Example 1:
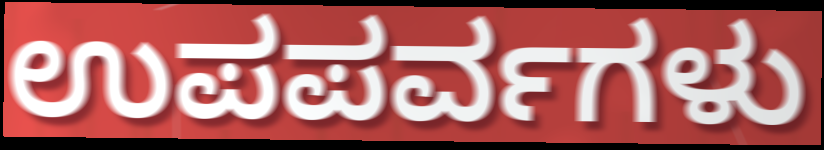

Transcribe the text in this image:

ಉಪಪರ್ವಗಳು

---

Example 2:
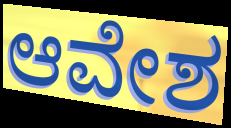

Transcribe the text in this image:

ಆವೇಶ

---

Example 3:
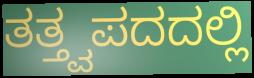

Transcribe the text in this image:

ತತ್ತ್ವಪದದಲ್ಲಿ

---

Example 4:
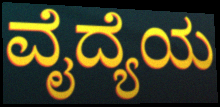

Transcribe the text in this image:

ವೈದ್ಯೆಯ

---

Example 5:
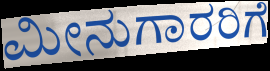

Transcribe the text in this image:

ಮೀನುಗಾರರಿಗೆ